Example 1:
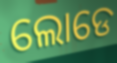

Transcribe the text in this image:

ଲୋଡେ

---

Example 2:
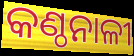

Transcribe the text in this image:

କଣ୍ଠନାଳୀ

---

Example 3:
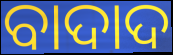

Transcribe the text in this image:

ବାଦାଦ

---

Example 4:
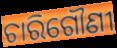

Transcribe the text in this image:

ଚାରିଗୌଣୀ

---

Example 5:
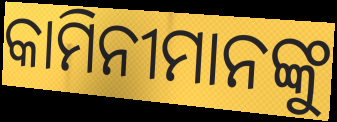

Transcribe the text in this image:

କାମିନୀମାନଙ୍କୁ